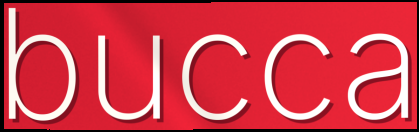
bucca